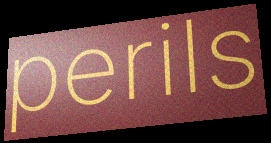
perils